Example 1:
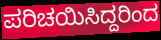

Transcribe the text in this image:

ಪರಿಚಯಿಸಿದ್ದರಿಂದ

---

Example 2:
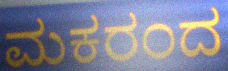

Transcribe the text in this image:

ಮಕರಂದ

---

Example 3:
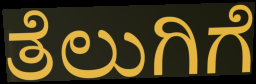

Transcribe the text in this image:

ತೆಲುಗಿಗೆ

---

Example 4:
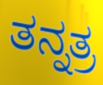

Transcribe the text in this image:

ತನ್ನತ್ರ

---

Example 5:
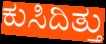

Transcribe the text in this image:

ಕುಸಿದಿತ್ತು